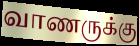
வாணருக்கு